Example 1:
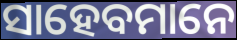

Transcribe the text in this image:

ସାହେବମାନେ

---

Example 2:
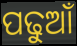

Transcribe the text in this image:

ପଢୁଆଁ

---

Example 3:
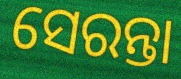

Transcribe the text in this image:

ସେରନ୍ତା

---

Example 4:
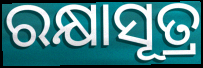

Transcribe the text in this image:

ରକ୍ଷାସୂତ୍ର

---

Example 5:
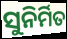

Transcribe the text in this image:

ସୁନିର୍ମିତ